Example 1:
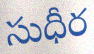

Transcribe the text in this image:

సుధీర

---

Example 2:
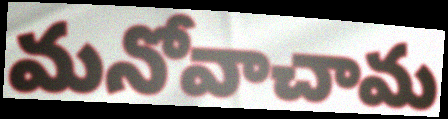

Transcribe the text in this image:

మనోవాచామ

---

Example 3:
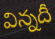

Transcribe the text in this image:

విన్నదీ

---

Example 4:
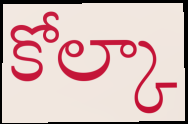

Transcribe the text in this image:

కోల్కా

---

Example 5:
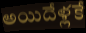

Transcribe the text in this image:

అయిదేళ్లకే